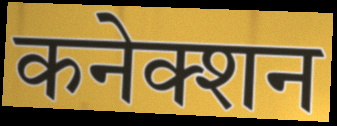
कनेक्‍शन